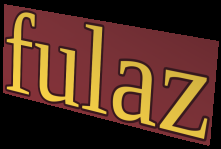
fulaz